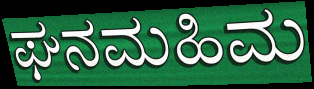
ಘನಮಹಿಮ